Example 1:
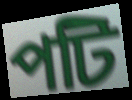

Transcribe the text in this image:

পটি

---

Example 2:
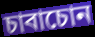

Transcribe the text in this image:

চাবাচোন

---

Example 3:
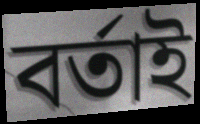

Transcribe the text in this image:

বৰ্তাই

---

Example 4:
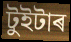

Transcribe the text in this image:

টুইটাৰ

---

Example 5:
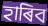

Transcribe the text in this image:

হাৰিব